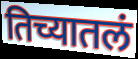
तिच्यातलं